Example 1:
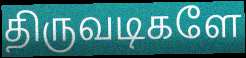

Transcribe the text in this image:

திருவடிகளே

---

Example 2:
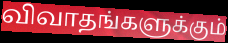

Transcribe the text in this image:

விவாதங்களுக்கும்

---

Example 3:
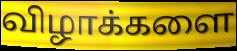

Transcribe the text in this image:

விழாக்களை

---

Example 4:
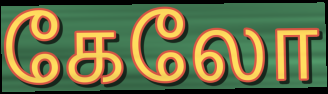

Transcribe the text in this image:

கேலோ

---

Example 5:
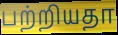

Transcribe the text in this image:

பற்றியதா